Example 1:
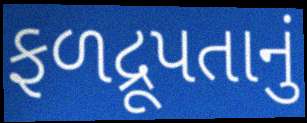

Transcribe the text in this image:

ફળદ્રૂપતાનું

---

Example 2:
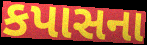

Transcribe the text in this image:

કપાસના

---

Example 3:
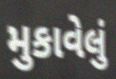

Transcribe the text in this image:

મુકાવેલું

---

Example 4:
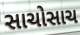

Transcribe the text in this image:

સાચોસાચ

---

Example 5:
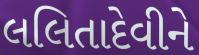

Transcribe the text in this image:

લલિતાદેવીને